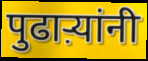
पुढाऱ्‍यांनी